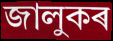
জালুকৰ